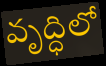
వృద్ధిలో